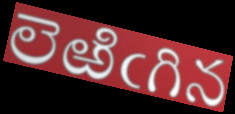
లెఱిఁగిన